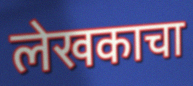
लेखकाचा